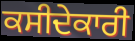
ਕਸੀਦੇਕਾਰੀ